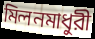
মিলনমাধুরী